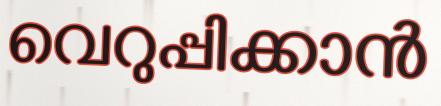
വെറുപ്പിക്കാൻ